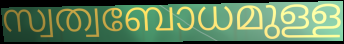
സ്വത്വബോധമുള്ള